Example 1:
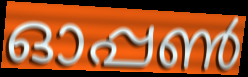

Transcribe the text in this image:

ഓപ്പൺ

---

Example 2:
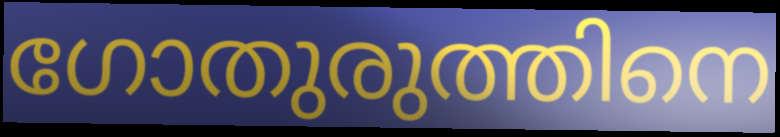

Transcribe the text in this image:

ഗോതുരുത്തിനെ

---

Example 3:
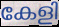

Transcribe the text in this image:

കേളി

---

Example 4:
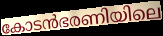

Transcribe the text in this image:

കോടൻഭരണിയിലെ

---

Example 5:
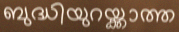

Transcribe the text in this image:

ബുദ്ധിയുറയ്ക്കാത്ത